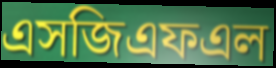
এসজিএফএল